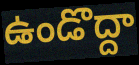
ఉండొద్దా